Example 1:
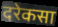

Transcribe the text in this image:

दरेकसा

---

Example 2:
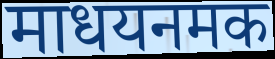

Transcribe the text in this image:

माधयनमक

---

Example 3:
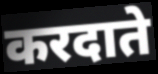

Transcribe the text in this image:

करदाते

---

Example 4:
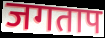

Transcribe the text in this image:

जगताप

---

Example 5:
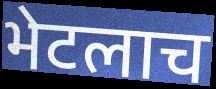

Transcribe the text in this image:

भेटलाच